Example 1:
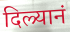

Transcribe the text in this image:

दिल्यानं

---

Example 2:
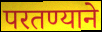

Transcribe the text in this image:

परतण्याने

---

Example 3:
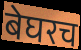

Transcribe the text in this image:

बेघरच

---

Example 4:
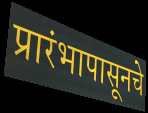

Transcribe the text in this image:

प्रारंभापासूनचे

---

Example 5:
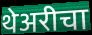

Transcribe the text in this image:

थेअरीचा